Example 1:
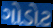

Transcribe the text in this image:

ગોડોટ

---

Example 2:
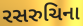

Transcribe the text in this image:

રસરુચિના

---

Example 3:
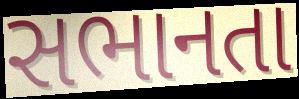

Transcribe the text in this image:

સભાનતા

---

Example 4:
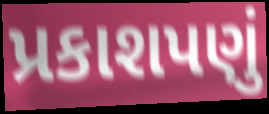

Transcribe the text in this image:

પ્રકાશપણું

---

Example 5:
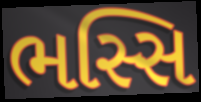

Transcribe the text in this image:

ભસ્સિ